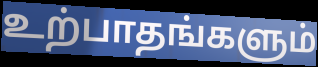
உற்பாதங்களும்